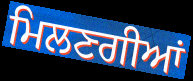
ਮਿਲਣਗੀਆਂ